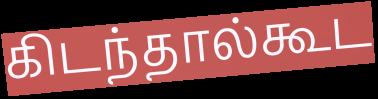
கிடந்தால்கூட